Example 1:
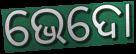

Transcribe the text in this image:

ଭେଦୋ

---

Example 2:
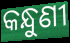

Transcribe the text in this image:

କନ୍ଧୁଣୀ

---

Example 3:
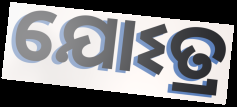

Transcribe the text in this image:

ଯୋଽତ୍ର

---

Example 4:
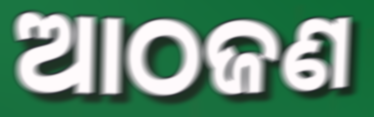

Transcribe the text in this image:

ଆଠଜଣ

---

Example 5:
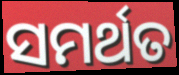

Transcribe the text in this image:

ସମର୍ଥତ